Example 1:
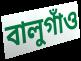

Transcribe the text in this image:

বালুগাঁও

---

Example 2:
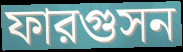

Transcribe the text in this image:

ফারগুসন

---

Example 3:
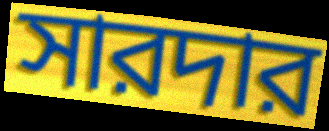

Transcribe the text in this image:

সারদার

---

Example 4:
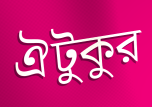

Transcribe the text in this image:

ঐটুকুর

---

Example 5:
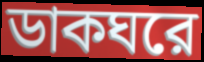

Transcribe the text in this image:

ডাকঘরে